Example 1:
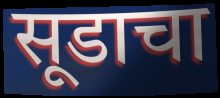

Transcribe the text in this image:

सूडाचा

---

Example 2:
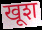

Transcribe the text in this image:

खूश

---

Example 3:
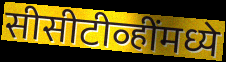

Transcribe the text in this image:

सीसीटीव्हींमध्ये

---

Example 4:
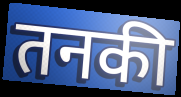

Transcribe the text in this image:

तनकी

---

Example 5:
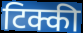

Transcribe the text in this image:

टिक्की